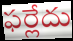
ఫర్లేదు